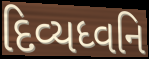
દિવ્યધ્વનિ